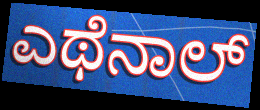
ಎಥೆನಾಲ್